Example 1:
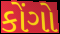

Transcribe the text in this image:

કોંગો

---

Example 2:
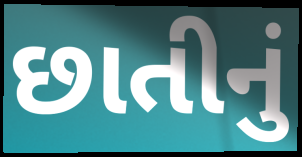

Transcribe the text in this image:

છાતીનું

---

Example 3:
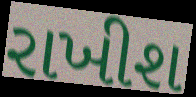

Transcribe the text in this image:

રાખીશ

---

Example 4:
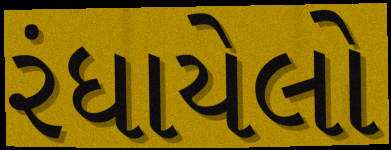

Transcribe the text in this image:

રંધાયેલો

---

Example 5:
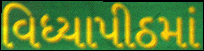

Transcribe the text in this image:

વિધ્યાપીઠમાં